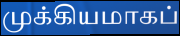
முக்கியமாகப்